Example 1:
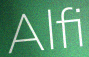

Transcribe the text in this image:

Alfi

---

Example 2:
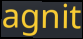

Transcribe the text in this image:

agnit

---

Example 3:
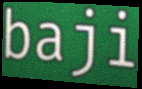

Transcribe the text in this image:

baji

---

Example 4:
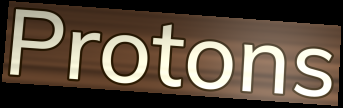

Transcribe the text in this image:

Protons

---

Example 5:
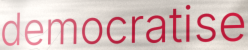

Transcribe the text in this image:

democratise